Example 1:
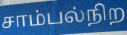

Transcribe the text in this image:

சாம்பல்நிற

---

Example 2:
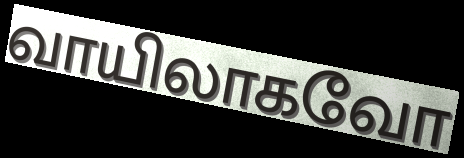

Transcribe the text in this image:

வாயிலாகவோ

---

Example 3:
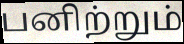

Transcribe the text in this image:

பனிற்றும்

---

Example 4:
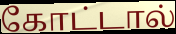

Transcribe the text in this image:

கோட்டால்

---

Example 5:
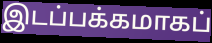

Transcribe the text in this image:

இடப்பக்கமாகப்